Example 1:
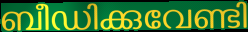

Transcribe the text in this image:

ബീഡിക്കുവേണ്ടി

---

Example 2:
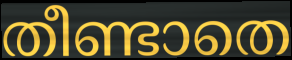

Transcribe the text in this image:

തീണ്ടാതെ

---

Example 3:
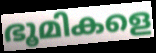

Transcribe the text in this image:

ഭൂമികളെ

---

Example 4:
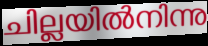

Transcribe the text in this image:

ചില്ലയിൽനിന്നു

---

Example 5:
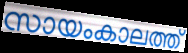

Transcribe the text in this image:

സായംകാലത്ത്